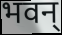
भवन्